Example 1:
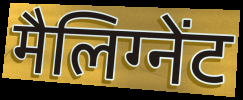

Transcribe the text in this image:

मैलिग्नेंट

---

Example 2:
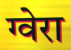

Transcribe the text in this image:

ग्वेरा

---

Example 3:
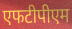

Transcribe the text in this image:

एफटीपीएम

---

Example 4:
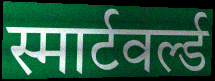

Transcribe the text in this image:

स्मार्टवर्ल्ड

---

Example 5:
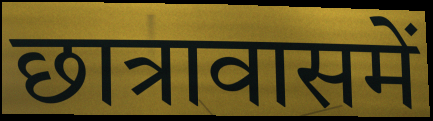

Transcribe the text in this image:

छात्रावासमें